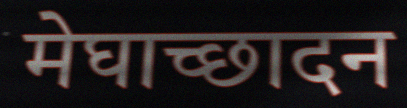
मेघाच्छादन